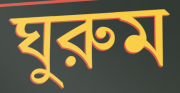
ঘুরুম